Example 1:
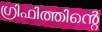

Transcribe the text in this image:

ഗ്രിഫിത്തിന്റെ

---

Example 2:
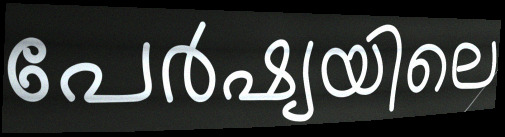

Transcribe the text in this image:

പേർഷ്യയിലെ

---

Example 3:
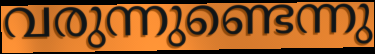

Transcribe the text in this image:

വരുന്നുണ്ടെന്നു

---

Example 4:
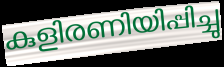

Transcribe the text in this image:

കുളിരണിയിപ്പിച്ചു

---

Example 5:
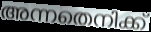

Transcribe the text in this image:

അന്നതെനിക്ക്